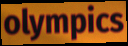
olympics